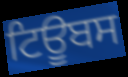
ਟਿਊਬਸ